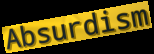
Absurdism